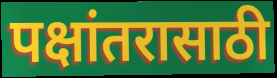
पक्षांतरासाठी